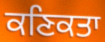
ਕਣਿਕਤਾ